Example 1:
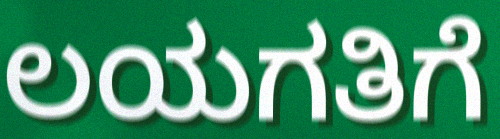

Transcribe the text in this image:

ಲಯಗತಿಗೆ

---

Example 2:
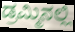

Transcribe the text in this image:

ಡ್ರಮ್ಮಿನಲ್ಲಿ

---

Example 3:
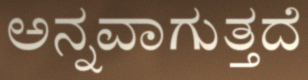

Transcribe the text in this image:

ಅನ್ನವಾಗುತ್ತದೆ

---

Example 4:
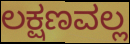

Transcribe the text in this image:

ಲಕ್ಷಣವಲ್ಲ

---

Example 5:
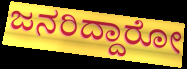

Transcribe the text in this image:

ಜನರಿದ್ದಾರೋ